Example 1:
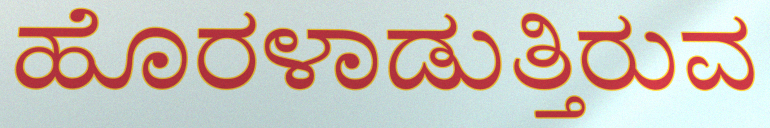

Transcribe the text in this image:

ಹೊರಳಾಡುತ್ತಿರುವ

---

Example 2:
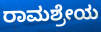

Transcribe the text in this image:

ರಾಮಶ್ರೇಯ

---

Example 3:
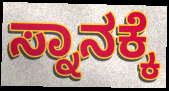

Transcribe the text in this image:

ಸ್ನಾನಕ್ಕೆ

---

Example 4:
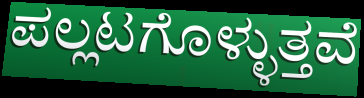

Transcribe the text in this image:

ಪಲ್ಲಟಗೊಳ್ಳುತ್ತವೆ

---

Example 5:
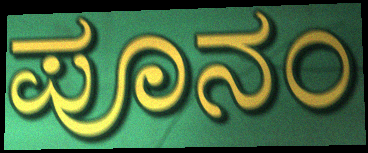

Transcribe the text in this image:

ಪೂನಂ